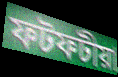
ফটফটীয়া